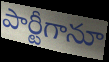
పార్టీగానూ